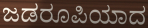
ಜಡರೂಪಿಯಾದ